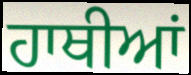
ਹਾਥੀਆਂ